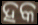
ହକ